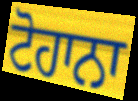
ਟੋਹਾਨਾ